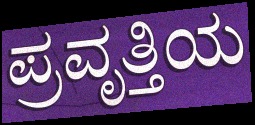
ಪ್ರವೃತ್ತಿಯ